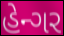
હેન્ગર